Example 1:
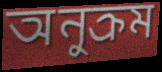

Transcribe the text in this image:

অনুক্রম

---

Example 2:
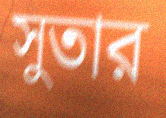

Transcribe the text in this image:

সুতার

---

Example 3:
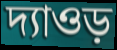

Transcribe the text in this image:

দ্যাওড়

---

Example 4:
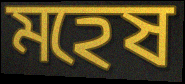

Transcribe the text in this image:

মহেষ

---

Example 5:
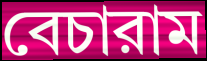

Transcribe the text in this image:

বেচারাম